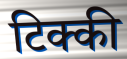
टिक्की